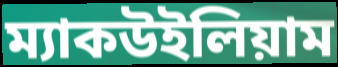
ম্যাকউইলিয়াম